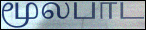
மூலபாட